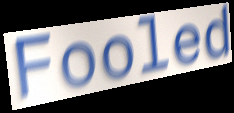
Fooled